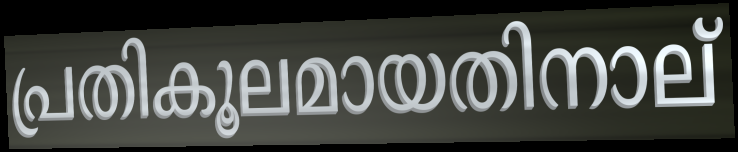
പ്രതികൂലമായതിനാല്